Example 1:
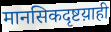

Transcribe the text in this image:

मानसिकदृष्टय़ाही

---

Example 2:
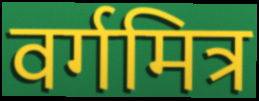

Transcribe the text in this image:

वर्गमित्र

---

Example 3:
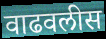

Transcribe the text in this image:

वाढवलीस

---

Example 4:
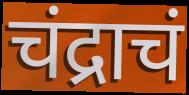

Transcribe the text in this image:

चंद्राचं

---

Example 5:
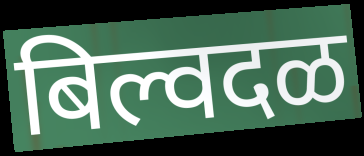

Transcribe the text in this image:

बिल्वदळ